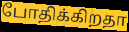
போதிக்கிறதா